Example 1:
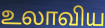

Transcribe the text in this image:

உலாவிய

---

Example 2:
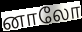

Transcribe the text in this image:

னாலோ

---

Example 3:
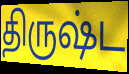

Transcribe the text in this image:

திருஷ்ட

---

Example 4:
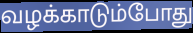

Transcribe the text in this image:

வழக்காடும்போது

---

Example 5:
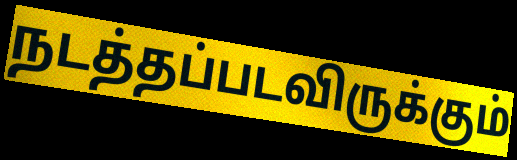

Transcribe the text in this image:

நடத்தப்படவிருக்கும்